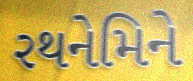
રથનેમિને